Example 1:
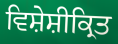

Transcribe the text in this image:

ਵਿਸ਼ੇਸ਼ੀਕ੍ਰਿਤ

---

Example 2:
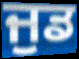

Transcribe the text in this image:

ਜੁਡ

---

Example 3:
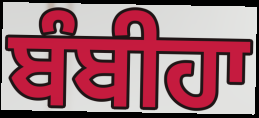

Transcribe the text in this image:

ਬੰਬੀਹਾ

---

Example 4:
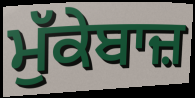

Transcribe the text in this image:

ਮੁੱਕੇਬਾਜ਼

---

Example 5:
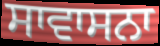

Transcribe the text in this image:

ਸਾਵਾਸਨਾ